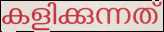
കളിക്കുന്നത്